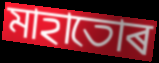
মাহাতোৰ